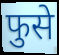
फुसे